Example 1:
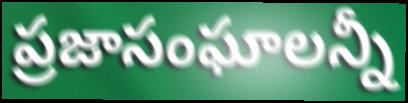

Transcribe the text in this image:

ప్రజాసంఘాలన్నీ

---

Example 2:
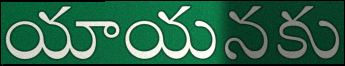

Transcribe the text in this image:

యాయనకు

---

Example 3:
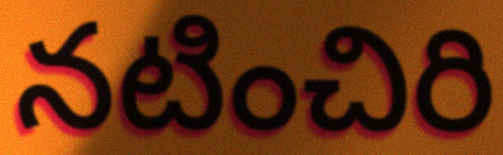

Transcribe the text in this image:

నటించిరి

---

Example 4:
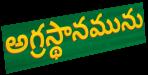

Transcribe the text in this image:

అగ్రస్థానమును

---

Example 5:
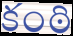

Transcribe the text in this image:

కంఠి